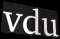
vdu